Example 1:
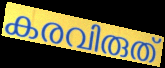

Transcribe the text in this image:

കരവിരുത്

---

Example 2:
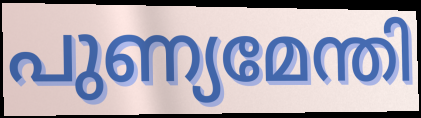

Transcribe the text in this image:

പുണ്യമേന്തി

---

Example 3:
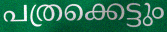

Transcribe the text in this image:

പത്രക്കെട്ടും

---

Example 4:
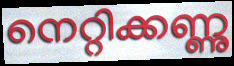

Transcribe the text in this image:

നെറ്റിക്കണ്ണു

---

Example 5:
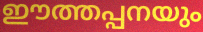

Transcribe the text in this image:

ഈത്തപ്പനയും